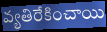
వ్యతిరేకించాయి